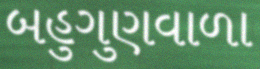
બહુગુણવાળા